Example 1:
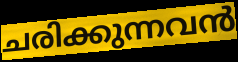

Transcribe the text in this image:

ചരിക്കുന്നവൻ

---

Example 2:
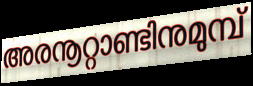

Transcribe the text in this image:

അരനൂറ്റാണ്ടിനുമുമ്പ്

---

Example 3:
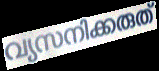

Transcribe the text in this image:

വ്യസനിക്കരുത്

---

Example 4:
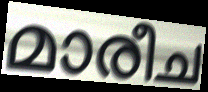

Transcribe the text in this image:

മാരീച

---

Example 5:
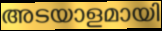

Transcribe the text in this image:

അടയാളമായി